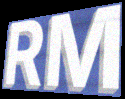
RM